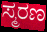
ಸ್ಮರಣ